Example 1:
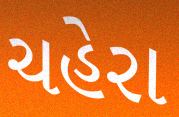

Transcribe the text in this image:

ચહેરા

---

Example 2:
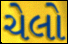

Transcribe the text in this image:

ચેલો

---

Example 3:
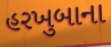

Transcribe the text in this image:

હરખુબાના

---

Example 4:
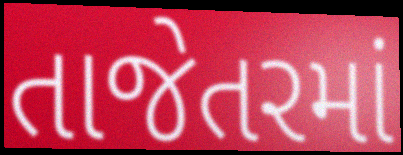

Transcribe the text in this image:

તાજેતરમાં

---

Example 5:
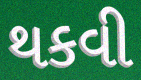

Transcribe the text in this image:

થકવી